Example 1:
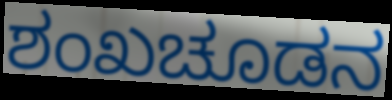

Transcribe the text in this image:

ಶಂಖಚೂಡನ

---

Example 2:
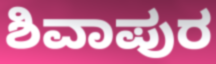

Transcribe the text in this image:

ಶಿವಾಪುರ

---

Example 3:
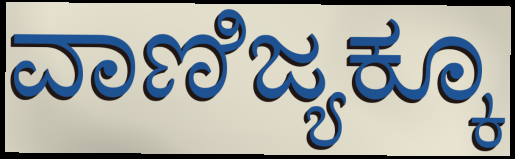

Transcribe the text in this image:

ವಾಣಿಜ್ಯಕ್ಕೂ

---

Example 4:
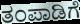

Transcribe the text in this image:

ತಂಪಾಡಿಗೆ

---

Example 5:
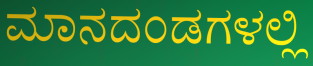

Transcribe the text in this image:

ಮಾನದಂಡಗಳಲ್ಲಿ